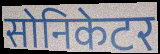
सोनिकेटर